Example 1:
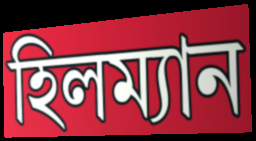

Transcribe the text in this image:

হিলম্যান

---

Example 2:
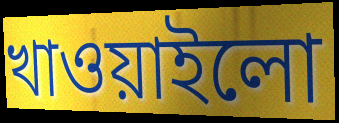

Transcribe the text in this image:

খাওয়াইলো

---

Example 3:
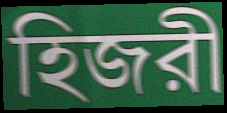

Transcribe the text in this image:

হিজরী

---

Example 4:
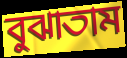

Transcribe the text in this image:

বুঝাতাম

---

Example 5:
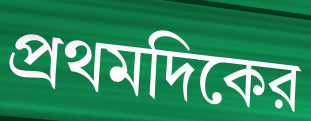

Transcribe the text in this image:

প্রথমদিকের